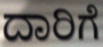
ದಾರಿಗೆ